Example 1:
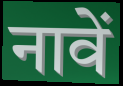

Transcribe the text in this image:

नावें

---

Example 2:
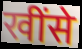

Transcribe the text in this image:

खींसे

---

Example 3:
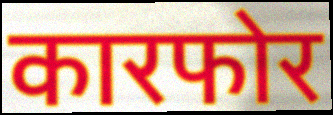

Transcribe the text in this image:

कारफोर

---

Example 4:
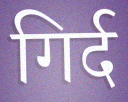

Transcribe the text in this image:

गिर्द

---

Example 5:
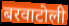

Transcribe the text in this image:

बरवाटोली